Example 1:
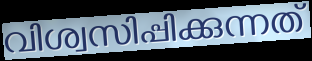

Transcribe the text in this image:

വിശ്വസിപ്പിക്കുന്നത്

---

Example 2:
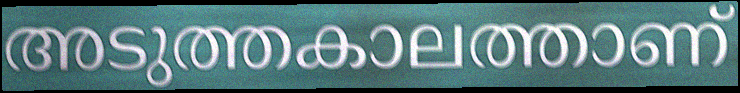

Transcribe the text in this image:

അടുത്തകാലത്താണ്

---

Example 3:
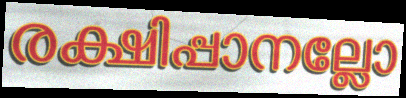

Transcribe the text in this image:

രക്ഷിപ്പാനല്ലോ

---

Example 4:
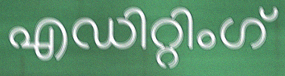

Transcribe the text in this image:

എഡിറ്റിംഗ്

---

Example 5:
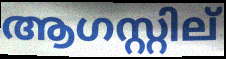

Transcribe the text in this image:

ആഗസ്റ്റില്